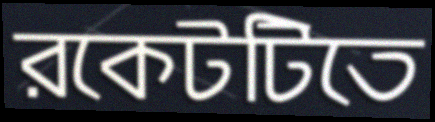
রকেটটিতে